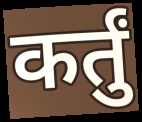
कर्तुं